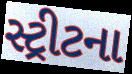
સ્ટ્રીટના